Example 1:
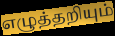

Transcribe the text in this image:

எழுத்தறியும்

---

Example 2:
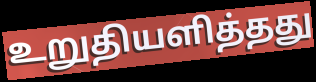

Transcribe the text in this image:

உறுதியளித்தது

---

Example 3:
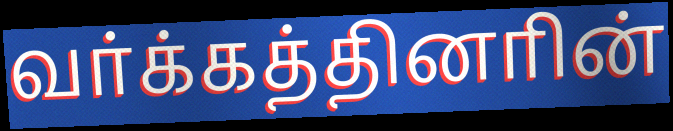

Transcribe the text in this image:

வர்க்கத்தினரின்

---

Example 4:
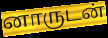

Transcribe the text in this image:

னாருடன்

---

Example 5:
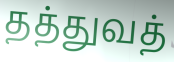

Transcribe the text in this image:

தத்துவத்